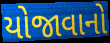
યોજાવાનો